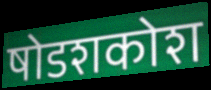
षोडशकोश